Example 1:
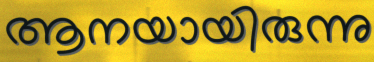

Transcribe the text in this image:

ആനയായിരുന്നു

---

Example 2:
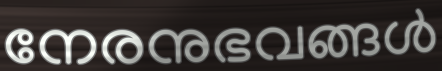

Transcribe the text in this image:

നേരനുഭവങ്ങൾ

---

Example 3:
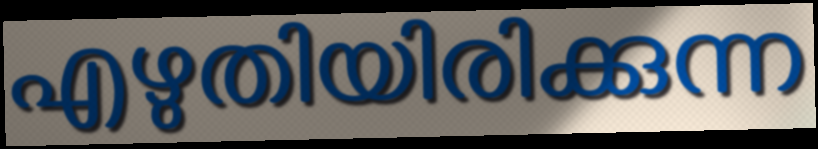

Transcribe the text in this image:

എഴുതിയിരിക്കുന്ന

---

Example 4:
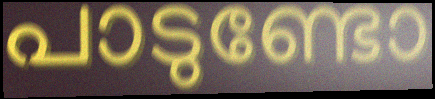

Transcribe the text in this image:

പാടുണ്ടോ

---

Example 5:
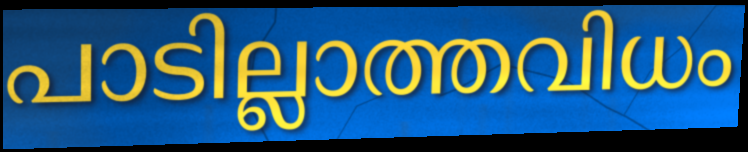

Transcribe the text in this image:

പാടില്ലാത്തവിധം